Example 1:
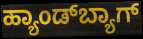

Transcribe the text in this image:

ಹ್ಯಾಂಡ್‌ಬ್ಯಾಗ್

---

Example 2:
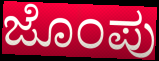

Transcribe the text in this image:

ಜೊಂಪು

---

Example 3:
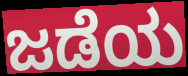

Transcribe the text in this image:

ಜಡೆಯ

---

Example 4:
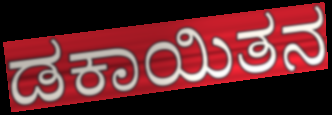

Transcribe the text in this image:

ಡಕಾಯಿತನ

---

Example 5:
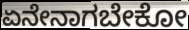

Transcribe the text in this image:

ಏನೇನಾಗಬೇಕೋ